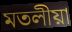
মতলীয়া